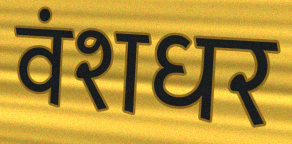
वंशधर